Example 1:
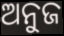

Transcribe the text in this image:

ଅନୁଜ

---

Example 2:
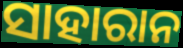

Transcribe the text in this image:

ସାହାରାନ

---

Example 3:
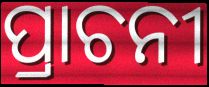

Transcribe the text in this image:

ପ୍ରାଚନୀ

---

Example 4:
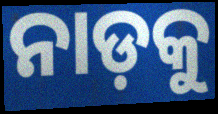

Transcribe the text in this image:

ନାଡ଼କୁ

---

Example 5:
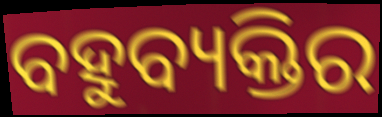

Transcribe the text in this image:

ବହୁବ୍ୟକ୍ତିର